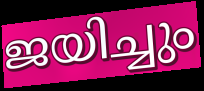
ജയിച്ചും